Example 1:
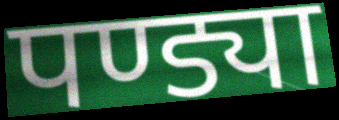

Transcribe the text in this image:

पण्ड्या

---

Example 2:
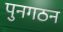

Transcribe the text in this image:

पुनगठन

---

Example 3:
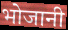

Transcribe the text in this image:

भोजानी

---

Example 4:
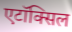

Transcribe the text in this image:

एटॉक्सिल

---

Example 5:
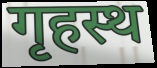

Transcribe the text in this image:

गृहस्थ